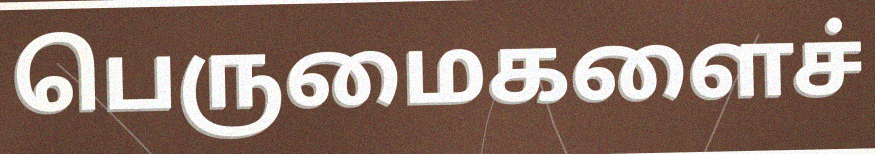
பெருமைகளைச்